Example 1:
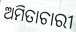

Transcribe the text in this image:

ଅମିତାଚାରୀ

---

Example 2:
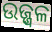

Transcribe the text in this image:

ଉଜ୍ଜ୍ବଳ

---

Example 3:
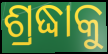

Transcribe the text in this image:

ଶ୍ରଦ୍ଧାକୁ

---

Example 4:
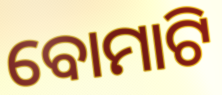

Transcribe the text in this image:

ବୋମାଟି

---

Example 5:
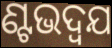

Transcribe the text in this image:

ଣ୍ଟଭଦ୍ଵଯ